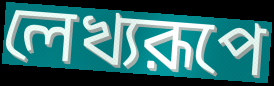
লেখ্যরূপে